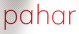
pahar